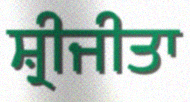
ਸ਼੍ਰੀਜੀਤਾ